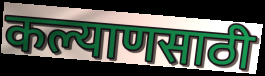
कल्याणसाठी